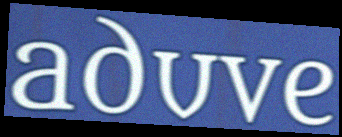
aduve